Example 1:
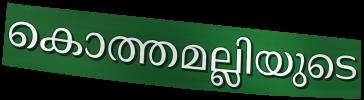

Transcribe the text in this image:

കൊത്തമല്ലിയുടെ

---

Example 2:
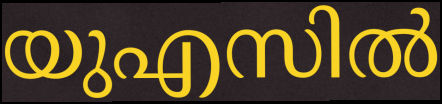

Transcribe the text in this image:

യുഎസിൽ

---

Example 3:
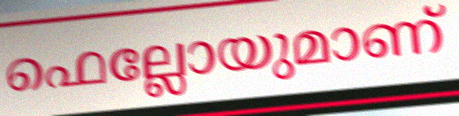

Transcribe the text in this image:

ഫെല്ലോയുമാണ്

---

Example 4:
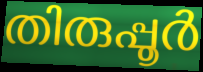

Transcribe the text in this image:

തിരുപ്പൂർ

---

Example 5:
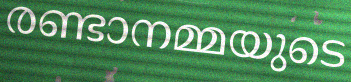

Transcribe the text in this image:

രണ്ടാനമ്മയുടെ